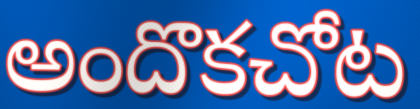
అందొకచోట